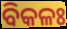
ବିକଳଃ